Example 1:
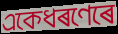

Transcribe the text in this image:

একেধৰণেৰে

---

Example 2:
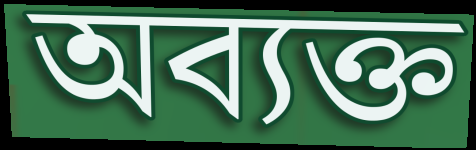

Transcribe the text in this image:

অব্যক্ত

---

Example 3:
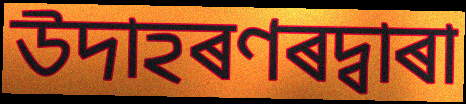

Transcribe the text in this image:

উদাহৰণৰদ্বাৰা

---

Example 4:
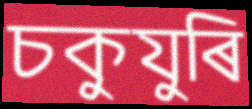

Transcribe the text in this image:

চকুযুৰি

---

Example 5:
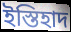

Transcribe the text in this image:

ইস্তিহাদ